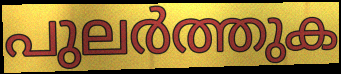
പുലർത്തുക